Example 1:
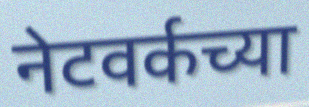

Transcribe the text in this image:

नेटवर्कच्या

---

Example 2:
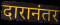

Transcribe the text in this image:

दारानंतर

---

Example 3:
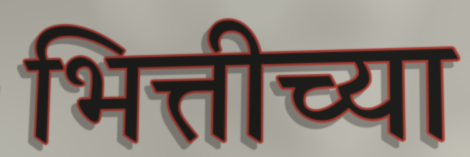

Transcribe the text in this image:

भित्तीच्या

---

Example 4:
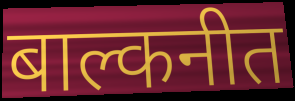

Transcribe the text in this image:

बाल्कनीत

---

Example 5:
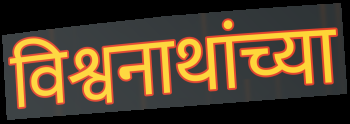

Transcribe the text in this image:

विश्वनाथांच्या